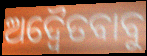
ଅଦ୍ୱୈତବାବୁ